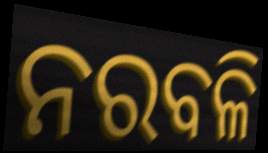
ନରବଳି